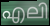
എലി